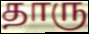
தாரு